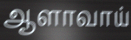
ஆளாவாய்